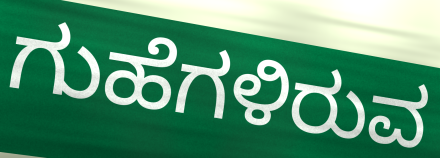
ಗುಹೆಗಳಿರುವ